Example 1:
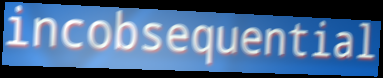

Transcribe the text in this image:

incobsequential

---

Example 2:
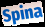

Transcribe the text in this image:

Spina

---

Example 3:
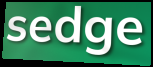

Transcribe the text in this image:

sedge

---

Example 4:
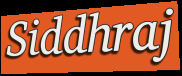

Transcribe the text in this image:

Siddhraj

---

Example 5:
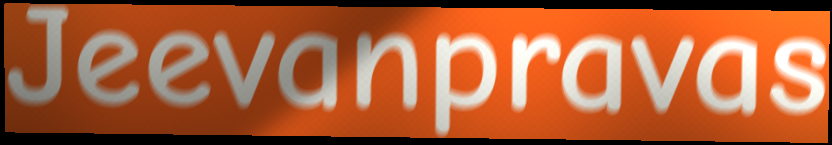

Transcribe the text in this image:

Jeevanpravas